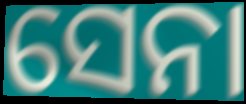
ସେନା